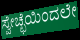
ಸ್ವೇಚ್ಛೆಯಿಂದಲೇ